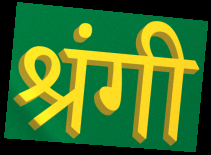
श्रंगी